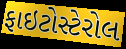
ફાઇટોસ્ટેરોલ